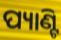
ପ୍ୟାଣ୍ଟି